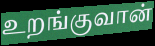
உறங்குவான்